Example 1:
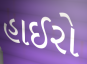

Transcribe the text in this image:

હાઈરો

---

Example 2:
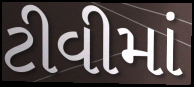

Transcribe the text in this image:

ટીવીમાં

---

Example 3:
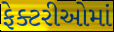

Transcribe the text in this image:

ફેક્ટરીઓમાં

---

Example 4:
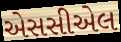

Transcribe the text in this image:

એસસીએલ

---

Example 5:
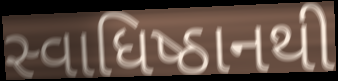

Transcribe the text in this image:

સ્વાધિષ્ઠાનથી